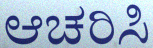
ಆಚರಿಸಿ